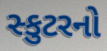
સ્કુટરનો